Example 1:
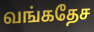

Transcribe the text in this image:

வங்கதேச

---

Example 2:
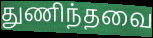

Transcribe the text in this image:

துணிந்தவை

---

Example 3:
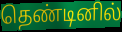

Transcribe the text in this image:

தெண்டினில்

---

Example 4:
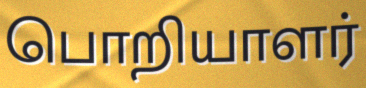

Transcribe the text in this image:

பொறியாளர்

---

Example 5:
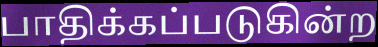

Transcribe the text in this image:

பாதிக்கப்படுகின்ற